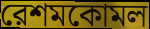
রেশমকোমল